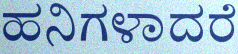
ಹನಿಗಳಾದರೆ